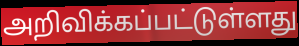
அறிவிக்கப்பட்டுள்ளது